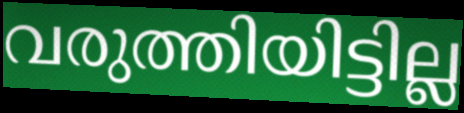
വരുത്തിയിട്ടില്ല